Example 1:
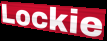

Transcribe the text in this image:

Lockie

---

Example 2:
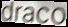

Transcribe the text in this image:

draco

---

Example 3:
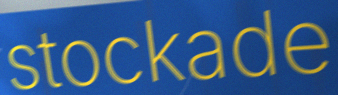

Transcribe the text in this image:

stockade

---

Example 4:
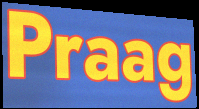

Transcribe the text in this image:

Praag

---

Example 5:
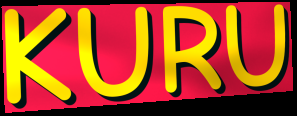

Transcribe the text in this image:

KURU